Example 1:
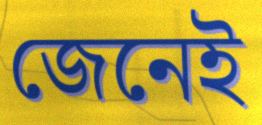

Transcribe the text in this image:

জেনেই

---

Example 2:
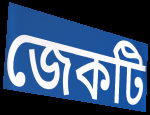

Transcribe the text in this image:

জেকটি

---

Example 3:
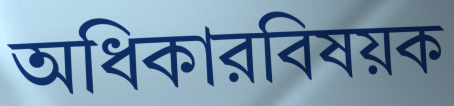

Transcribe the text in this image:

অধিকারবিষয়ক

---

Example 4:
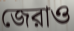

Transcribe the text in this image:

জেরাও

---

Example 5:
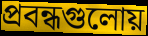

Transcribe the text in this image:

প্রবন্ধগুলোয়